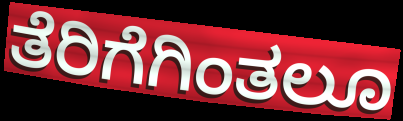
ತೆರಿಗೆಗಿಂತಲೂ